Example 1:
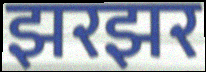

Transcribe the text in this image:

झरझर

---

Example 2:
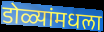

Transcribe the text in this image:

डोळ्यांमधला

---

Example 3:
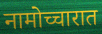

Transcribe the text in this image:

नामोच्चारात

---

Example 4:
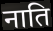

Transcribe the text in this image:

नाति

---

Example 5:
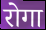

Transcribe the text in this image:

रोगा